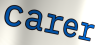
carer